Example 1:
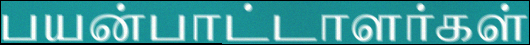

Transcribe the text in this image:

பயன்பாட்டாளர்கள்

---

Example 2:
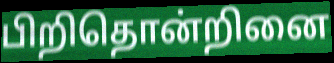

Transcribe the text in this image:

பிறிதொன்றினை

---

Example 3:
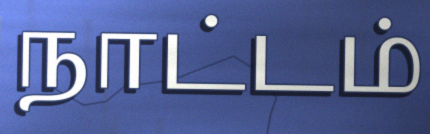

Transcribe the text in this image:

நாட்டம்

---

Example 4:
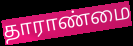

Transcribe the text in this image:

தாராண்மை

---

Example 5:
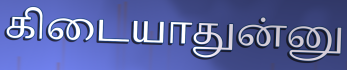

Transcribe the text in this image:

கிடையாதுன்னு